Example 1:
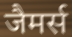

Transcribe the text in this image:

जैमर्स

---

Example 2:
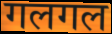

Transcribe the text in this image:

गलगल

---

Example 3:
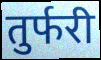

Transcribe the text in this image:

तुर्फरी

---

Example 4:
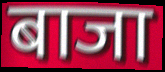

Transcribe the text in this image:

बाजा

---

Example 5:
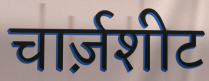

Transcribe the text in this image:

चार्ज़शीट